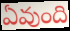
ఏవుంది